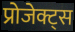
प्रोजेक्ट्स